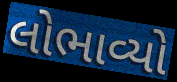
લોભાવ્યો